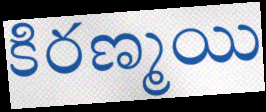
కిరణ్మయి